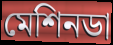
মেশিনডা